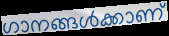
ഗാനങ്ങൾക്കാണ്